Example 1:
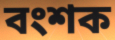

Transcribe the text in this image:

বংশক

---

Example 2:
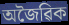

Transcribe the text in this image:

অজৈৱিক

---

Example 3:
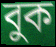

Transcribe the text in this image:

বুক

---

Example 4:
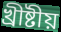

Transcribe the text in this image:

খ্ৰীষ্টীয়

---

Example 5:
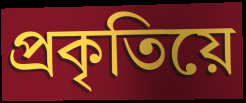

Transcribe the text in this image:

প্ৰকৃতিয়ে